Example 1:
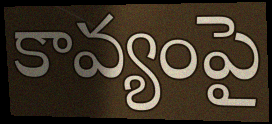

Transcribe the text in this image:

కావ్యంపై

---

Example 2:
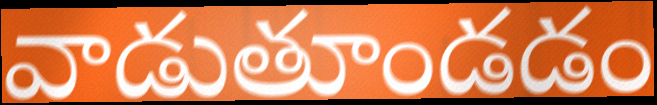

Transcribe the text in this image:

వాడుతూండడం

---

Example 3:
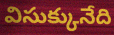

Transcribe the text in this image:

విసుక్కునేది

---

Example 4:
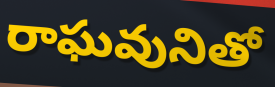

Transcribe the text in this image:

రాఘవునితో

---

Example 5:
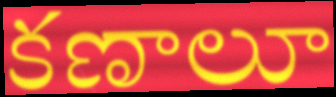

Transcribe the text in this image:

కణాలూ